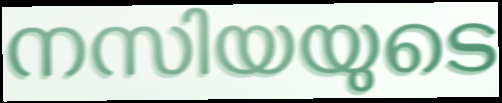
നസിയയുടെ